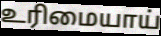
உரிமையாய்